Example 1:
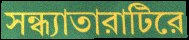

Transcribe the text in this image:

সন্ধ্যাতারাটিরে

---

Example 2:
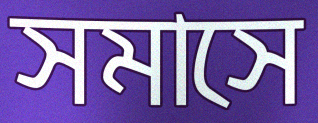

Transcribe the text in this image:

সমাসে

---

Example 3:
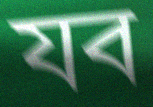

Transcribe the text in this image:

যব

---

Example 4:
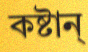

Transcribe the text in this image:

কষ্টান্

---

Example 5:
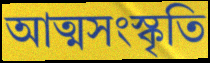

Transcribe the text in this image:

আত্মসংস্কৃতি